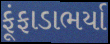
ફૂંફાડાભર્યા